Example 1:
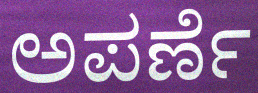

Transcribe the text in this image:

ಅಪರ್ಣೆ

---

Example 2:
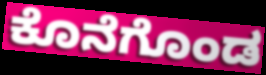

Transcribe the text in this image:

ಕೊನೆಗೊಂಡ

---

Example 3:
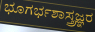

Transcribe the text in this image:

ಭೂಗರ್ಭಶಾಸ್ತ್ರಜ್ಞರ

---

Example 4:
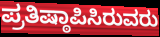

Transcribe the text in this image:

ಪ್ರತಿಷ್ಠಾಪಿಸಿರುವರು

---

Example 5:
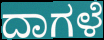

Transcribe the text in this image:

ದಾಗಳೆ